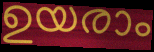
ഉയരാം